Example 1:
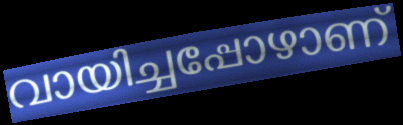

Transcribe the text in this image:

വായിച്ചപ്പോഴാണ്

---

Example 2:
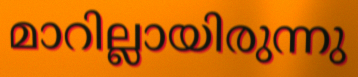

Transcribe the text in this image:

മാറില്ലായിരുന്നു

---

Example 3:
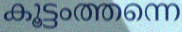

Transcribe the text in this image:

കൂട്ടംത്തന്നെ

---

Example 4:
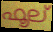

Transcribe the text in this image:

ഫൂല്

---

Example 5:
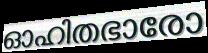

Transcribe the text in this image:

ഓഹിതഭാരോ